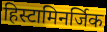
हिस्टामिनर्जिक